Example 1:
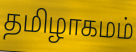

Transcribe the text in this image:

தமிழாகமம்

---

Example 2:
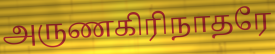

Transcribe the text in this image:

அருணகிரிநாதரே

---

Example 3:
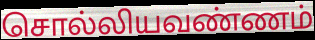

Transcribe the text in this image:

சொல்லியவண்ணம்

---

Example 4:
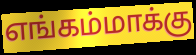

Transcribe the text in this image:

எங்கம்மாக்கு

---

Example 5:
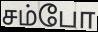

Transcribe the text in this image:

சம்போ